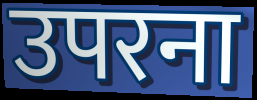
उपरना